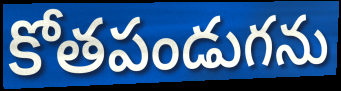
కోతపండుగను